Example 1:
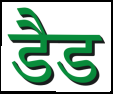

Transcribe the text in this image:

डैड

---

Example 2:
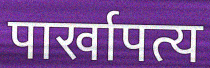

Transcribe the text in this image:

पार्खापत्य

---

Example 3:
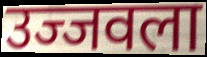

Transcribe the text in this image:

उज्‍जवला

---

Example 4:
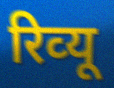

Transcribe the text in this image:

रिव्‍यू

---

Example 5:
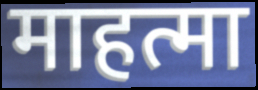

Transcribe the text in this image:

माहत्मा